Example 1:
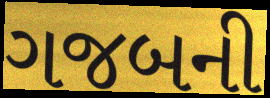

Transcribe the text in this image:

ગજબની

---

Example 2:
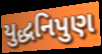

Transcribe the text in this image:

યુદ્ધનિપુણ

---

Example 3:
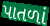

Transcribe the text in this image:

પાતળાં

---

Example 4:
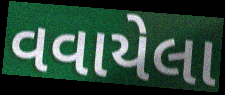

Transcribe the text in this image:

વવાયેલા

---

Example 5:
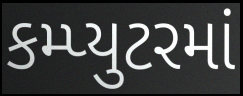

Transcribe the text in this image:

કમ્પ્યુટરમાં